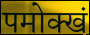
पमोक्खं